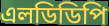
এলডিডিপি